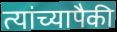
त्यांच्यापैकी